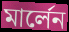
মার্লেন